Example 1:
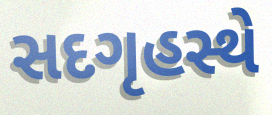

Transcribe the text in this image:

સદગૃહસ્થે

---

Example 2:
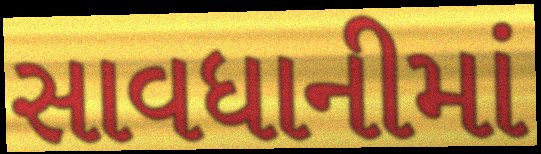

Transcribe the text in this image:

સાવધાનીમાં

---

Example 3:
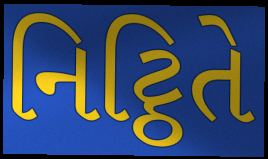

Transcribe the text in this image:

નિટ્ઠિતે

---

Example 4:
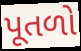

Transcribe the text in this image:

પૂતળો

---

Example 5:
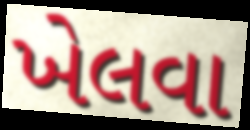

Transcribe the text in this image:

ખેલવા